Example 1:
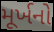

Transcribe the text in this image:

મૂર્ખનો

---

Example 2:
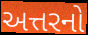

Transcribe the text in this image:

અત્તરનો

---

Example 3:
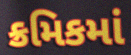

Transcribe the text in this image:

ક્રમિકમાં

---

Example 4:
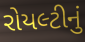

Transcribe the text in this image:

રોયલ્ટીનું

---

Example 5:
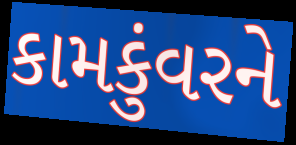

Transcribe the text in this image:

કામકુંવરને